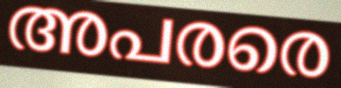
അപരരെ